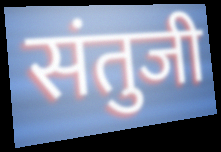
संतुजी